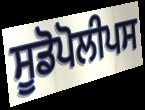
ਸੂਡੋਪੋਲੀਪਸ